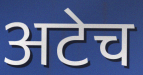
अटेच